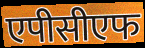
एपीसीएफ